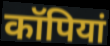
कॉपियां